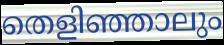
തെളിഞ്ഞാലും